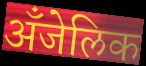
अँजेलिक